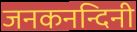
जनकनन्दिनी